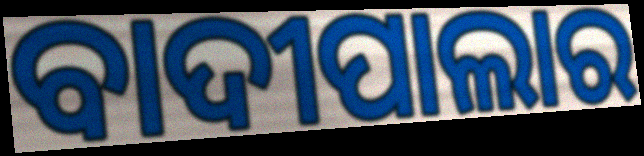
ବାଦୀପାଲାର